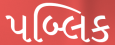
પબ્લિક